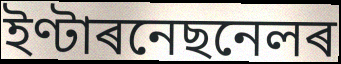
ইণ্টাৰনেছনেলৰ